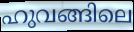
ഹുവങ്ങിലെ